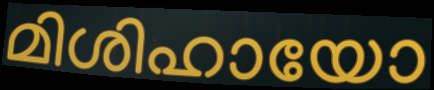
മിശിഹായോ